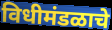
विधीमंडळाचे